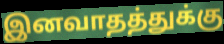
இனவாதத்துக்கு